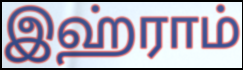
இஹ்ராம்